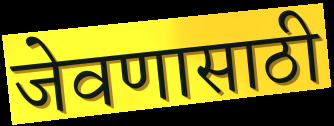
जेवणासाठी